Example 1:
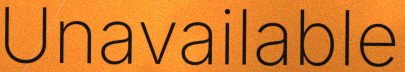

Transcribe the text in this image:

Unavailable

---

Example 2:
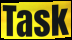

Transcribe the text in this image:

Task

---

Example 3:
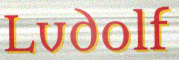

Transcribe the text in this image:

Ludolf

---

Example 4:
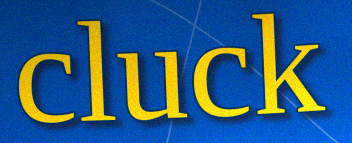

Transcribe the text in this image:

cluck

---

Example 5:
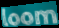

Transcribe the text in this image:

loom